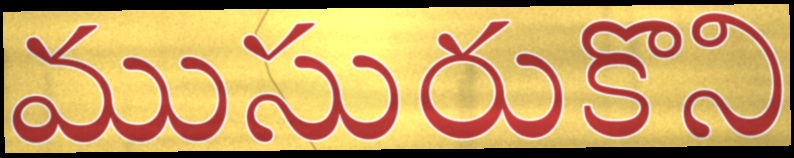
ముసురుకొని